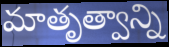
మాతృత్వాన్ని